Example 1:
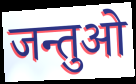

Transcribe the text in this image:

जन्तुओ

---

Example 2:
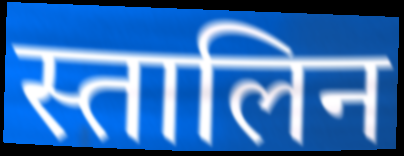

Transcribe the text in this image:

स्तालिन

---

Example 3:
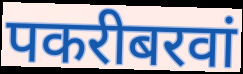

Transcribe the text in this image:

पकरीबरवां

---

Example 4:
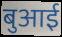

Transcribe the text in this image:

बुआई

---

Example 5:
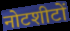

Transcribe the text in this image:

नोटशीटों